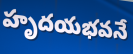
హృదయభవనే